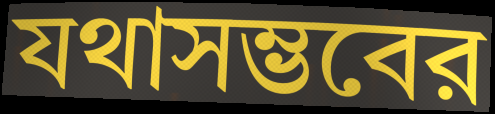
যথাসম্ভবের